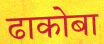
ढाकोबा